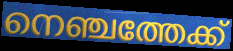
നെഞ്ചത്തേക്ക്